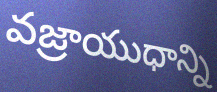
వజ్రాయుధాన్ని